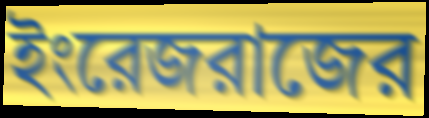
ইংরেজরাজের